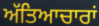
ਅੱਤਿਆਚਾਰਾਂ